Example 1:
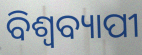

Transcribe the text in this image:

ବିଶ୍ୱବ୍ୟାପୀ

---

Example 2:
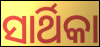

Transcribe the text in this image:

ସାର୍ଥିକା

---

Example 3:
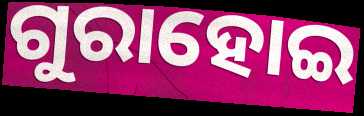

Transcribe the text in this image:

ଗୁରାହୋଇ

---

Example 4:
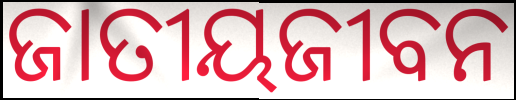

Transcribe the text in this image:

ଜାତୀୟଜୀବନ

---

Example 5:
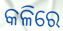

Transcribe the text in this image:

କଳିରେ